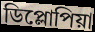
ডিপ্লোপিয়া